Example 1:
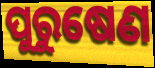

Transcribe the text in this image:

ପୁରୁଷେଣ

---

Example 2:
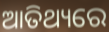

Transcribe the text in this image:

ଆତିଥ୍ୟରେ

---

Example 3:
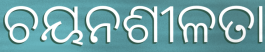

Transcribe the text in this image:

ଚୟନଶୀଳତା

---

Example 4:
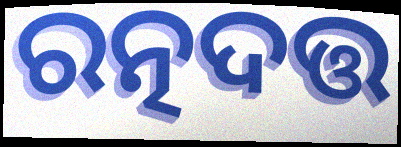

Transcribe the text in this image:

ରତ୍ନଦତ୍ତ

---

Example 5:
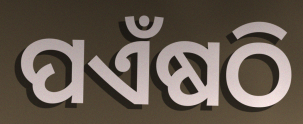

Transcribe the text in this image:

ପଏଁଷଠି